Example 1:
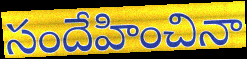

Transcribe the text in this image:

సందేహించినా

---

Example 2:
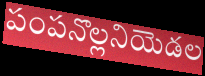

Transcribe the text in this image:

పంపనొల్లనియెడల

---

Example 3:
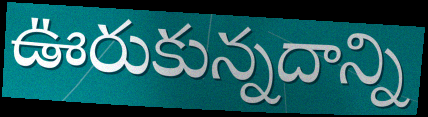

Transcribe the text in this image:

ఊరుకున్నదాన్ని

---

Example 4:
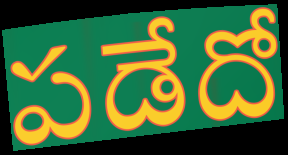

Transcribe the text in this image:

పడేదో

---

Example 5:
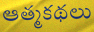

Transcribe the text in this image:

ఆత్మకథలు